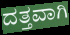
ದತ್ತವಾಗಿ